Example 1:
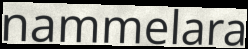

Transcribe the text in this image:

nammelara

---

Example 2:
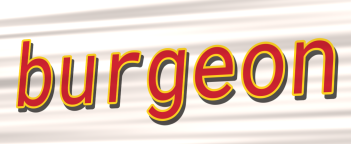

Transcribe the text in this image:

burgeon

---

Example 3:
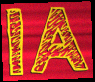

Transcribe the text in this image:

IA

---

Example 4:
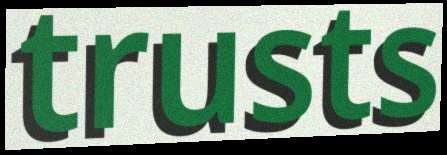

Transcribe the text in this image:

trusts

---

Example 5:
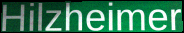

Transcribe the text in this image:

Hilzheimer